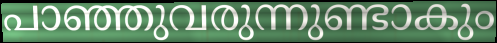
പാഞ്ഞുവരുന്നുണ്ടാകും